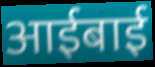
आईबाई